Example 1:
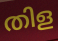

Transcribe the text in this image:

തിള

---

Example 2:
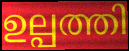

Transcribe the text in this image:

ഉല്പത്തി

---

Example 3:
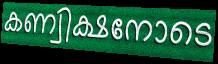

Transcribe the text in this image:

കണ്വിക്ഷനോടെ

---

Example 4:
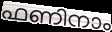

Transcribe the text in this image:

ഫണിനാം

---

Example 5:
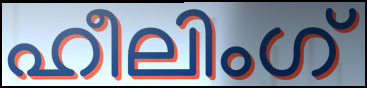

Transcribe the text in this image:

ഹീലിംഗ്